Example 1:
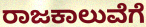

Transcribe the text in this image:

ರಾಜಕಾಲುವೆಗೆ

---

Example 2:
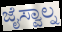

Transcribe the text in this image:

ಜೈಸ್ವಾಲ್ನ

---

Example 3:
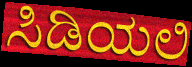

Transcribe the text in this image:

ಸಿಡಿಯಲಿ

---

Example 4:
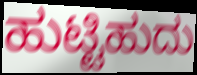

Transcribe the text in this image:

ಹುಟ್ಟಿಹುದು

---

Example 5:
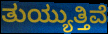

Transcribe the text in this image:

ತುಯ್ಯುತ್ತಿವೆ